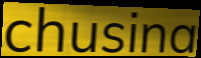
chusina